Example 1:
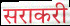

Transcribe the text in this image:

सराकरी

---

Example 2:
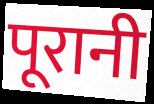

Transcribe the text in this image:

पूरानी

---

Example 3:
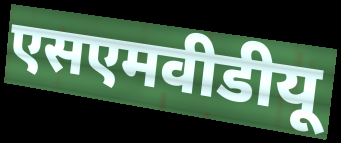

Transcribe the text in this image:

एसएमवीडीयू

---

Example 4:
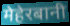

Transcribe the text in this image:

मेहेरबानी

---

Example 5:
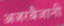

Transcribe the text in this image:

अजरबैजानी